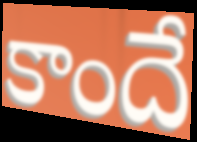
కాందే